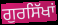
ਗੁਰਸਿੱਖਾਂ